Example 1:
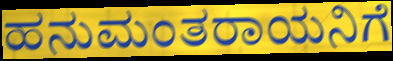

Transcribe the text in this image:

ಹನುಮಂತರಾಯನಿಗೆ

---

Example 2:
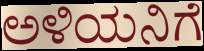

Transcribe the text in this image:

ಅಳಿಯನಿಗೆ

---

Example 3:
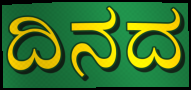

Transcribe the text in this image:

ದಿನದ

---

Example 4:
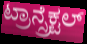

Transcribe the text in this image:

ಟ್ರಾನ್ಸ್ರೆಕ್ಟಲ್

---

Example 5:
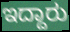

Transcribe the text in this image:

ಇದ್ದಾರು